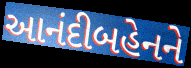
આનંદીબહેનને